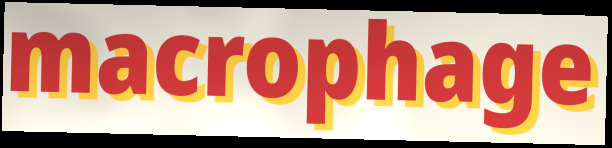
macrophage